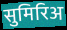
सुमिरिअ